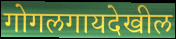
गोगलगायदेखील